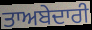
ਤਾਅਬੇਦਾਰੀ